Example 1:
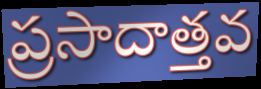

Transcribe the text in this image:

ప్రసాదాత్తవ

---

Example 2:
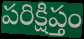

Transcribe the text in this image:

పరిక్షిప్తం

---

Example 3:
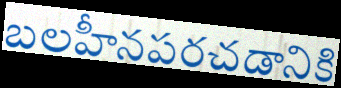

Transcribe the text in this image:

బలహీనపరచడానికి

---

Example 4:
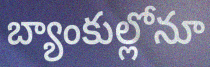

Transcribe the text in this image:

బ్యాంకుల్లోనూ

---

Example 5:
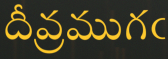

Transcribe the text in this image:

దీవ్రముగఁ